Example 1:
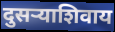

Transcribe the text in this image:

दुसऱ्याशिवाय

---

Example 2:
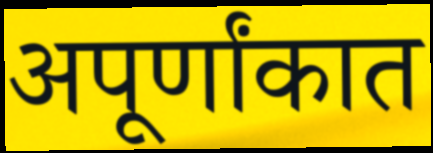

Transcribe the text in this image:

अपूर्णांकात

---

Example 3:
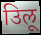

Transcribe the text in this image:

उिलू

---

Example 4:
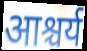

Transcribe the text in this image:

आश्चर्य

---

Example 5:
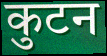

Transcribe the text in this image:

कुटन